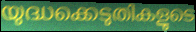
യുദ്ധക്കെടുതികളുടെ